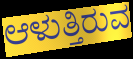
ಆಳುತ್ತಿರುವ